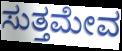
ಸುತ್ತಮೇವ